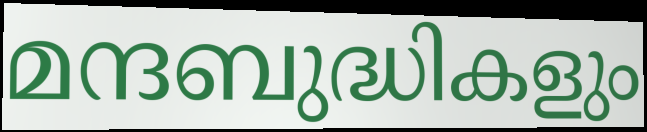
മന്ദബുദ്ധികളും